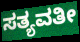
ಸತ್ಯವತೀ